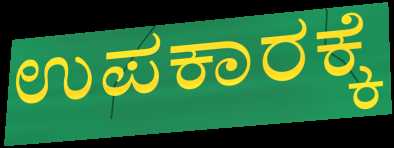
ಉಪಕಾರಕ್ಕೆ